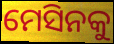
ମେସିନକୁ